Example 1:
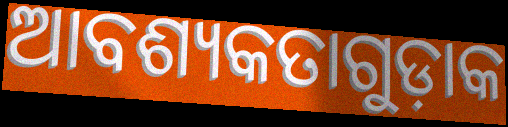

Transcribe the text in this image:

ଆବଶ୍ୟକତାଗୁଡ଼ାକ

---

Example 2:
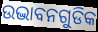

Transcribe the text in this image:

ଉଦ୍ଭାବନଗୁଡିକ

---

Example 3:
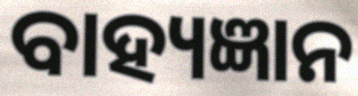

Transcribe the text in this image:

ବାହ୍ୟଜ୍ଞାନ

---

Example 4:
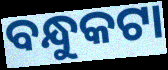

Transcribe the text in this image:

ବନ୍ଧୁକଟା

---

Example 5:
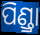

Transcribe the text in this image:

ପିଣ୍ଡ୍ରା